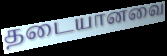
தடையானவை